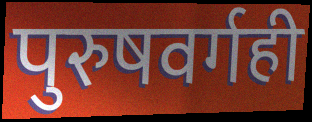
पुरुषवर्गही